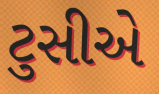
ટુસીએ